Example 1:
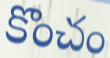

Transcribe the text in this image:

కొంచం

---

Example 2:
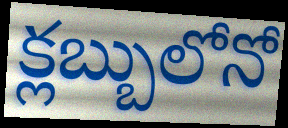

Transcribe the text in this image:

క్లబ్బులోనో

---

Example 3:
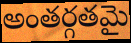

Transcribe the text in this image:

అంతర్గతమై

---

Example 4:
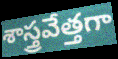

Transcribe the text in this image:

శాస్త్రవేత్తగా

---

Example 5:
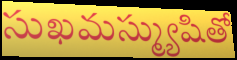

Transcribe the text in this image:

సుఖమస్మ్యుషితో